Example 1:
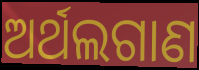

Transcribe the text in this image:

ଅର୍ଥଲଗାଣ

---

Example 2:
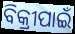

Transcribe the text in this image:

ବିକ୍ରୀପାଇଁ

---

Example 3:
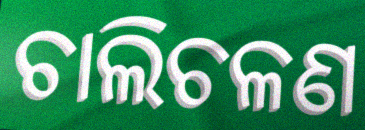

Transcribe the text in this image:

ଚାଲିଚଳଣ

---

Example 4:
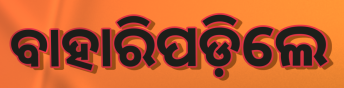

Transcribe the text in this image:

ବାହାରିପଡ଼ିଲେ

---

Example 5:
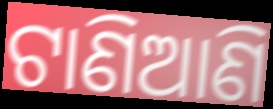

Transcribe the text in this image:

ଟାଣିଆଣି